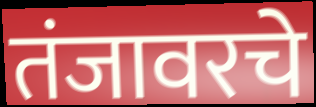
तंजावरचे